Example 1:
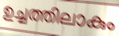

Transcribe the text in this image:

ഉച്ചത്തിലാകും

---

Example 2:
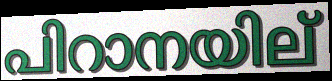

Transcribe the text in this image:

പിറാനയില്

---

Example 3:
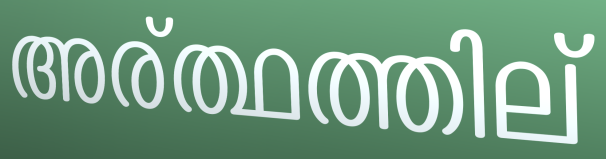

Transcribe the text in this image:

അര്ത്ഥത്തില്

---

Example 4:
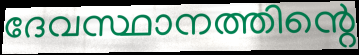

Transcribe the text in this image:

ദേവസ്ഥാനത്തിന്റെ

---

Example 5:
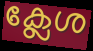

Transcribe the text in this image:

ക്ലേശ